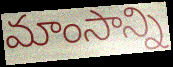
మాంసాన్ని